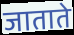
जाताते